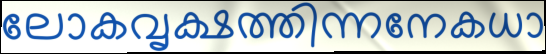
ലോകവൃക്ഷത്തിന്നനേകധാ